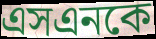
এসএনকে